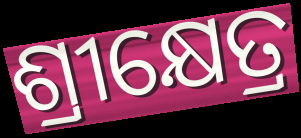
ଶ୍ରୀକ୍ଷେତ୍ର